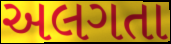
અલગતા